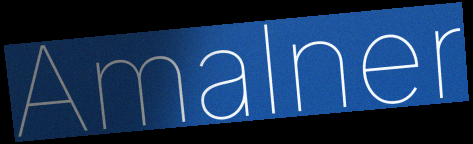
Amalner